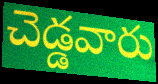
చెడ్డవారు